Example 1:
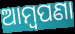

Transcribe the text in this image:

ଆମ୍ବପଣା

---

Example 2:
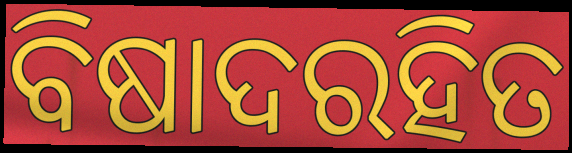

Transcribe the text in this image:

ବିଷାଦରହିତ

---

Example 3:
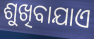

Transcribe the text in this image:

ଶୁଖିବାଯାଏ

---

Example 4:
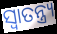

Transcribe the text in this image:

ସ୍ଵାତନ୍ତ୍ର୍ୟ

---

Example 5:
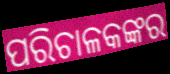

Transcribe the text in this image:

ପରିଚାଳକଙ୍କର